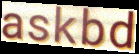
askbd